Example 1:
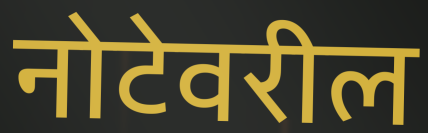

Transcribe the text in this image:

नोटेवरील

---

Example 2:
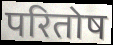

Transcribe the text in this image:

परितोष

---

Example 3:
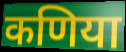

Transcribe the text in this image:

कणिया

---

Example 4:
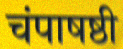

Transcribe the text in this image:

चंपाषष्ठी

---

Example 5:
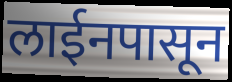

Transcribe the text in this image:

लाईनपासून